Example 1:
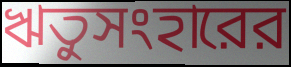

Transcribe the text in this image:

ঋতুসংহারের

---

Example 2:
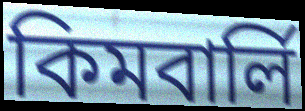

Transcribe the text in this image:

কিমবার্লি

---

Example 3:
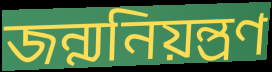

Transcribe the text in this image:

জন্মনিয়ন্ত্রণ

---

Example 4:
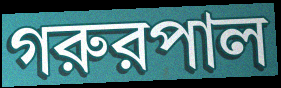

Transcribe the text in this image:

গরুরপাল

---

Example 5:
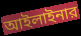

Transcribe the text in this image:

আইলাইনার